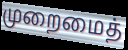
முறைமைத்